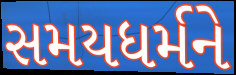
સમયધર્મને